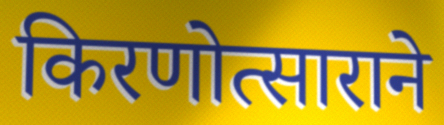
किरणोत्साराने